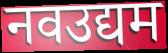
नवउद्यम